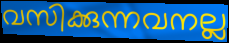
വസിക്കുന്നവനല്ല